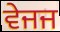
ਵੇਜਜ